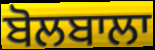
ਬੋਲਬਾਲਾ